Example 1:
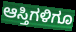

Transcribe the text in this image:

ಆಸ್ತಿಗಳಿಗೂ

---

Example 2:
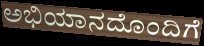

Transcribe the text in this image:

ಅಭಿಯಾನದೊಂದಿಗೆ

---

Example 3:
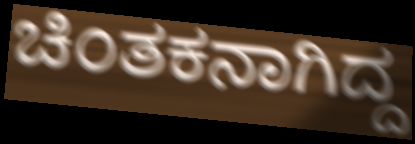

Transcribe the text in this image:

ಚಿಂತಕನಾಗಿದ್ದ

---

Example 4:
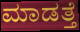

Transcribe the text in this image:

ಮಾಡತ್ತೆ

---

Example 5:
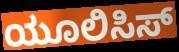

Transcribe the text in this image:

ಯೂಲಿಸಿಸ್